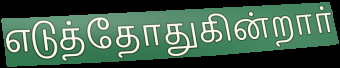
எடுத்தோதுகின்றார்